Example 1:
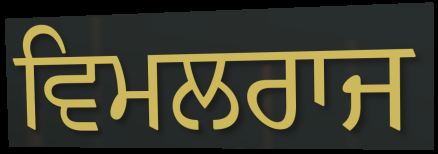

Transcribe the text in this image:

ਵਿਮਲਰਾਜ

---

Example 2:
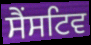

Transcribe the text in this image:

ਸੈਂਸਟਿਵ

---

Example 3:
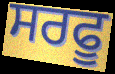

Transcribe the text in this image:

ਸਰਫੂ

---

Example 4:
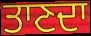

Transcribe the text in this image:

ਤਾਣਦਾ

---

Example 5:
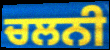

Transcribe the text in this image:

ਚਲਨੀ